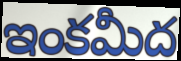
ఇంకమీద